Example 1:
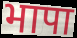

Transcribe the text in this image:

भापा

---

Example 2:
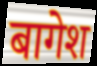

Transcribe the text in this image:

बागेश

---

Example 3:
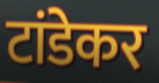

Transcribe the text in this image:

टांडेकर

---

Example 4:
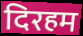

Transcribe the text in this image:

दिरहम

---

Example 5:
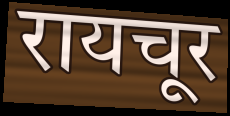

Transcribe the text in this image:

रायचूर